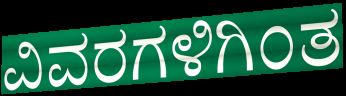
ವಿವರಗಳಿಗಿಂತ